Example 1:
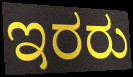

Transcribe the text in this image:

ಇರರು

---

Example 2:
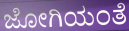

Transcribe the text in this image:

ಜೋಗಿಯಂತೆ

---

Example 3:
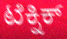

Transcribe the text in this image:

ಟೆಕ್ನಿಕ್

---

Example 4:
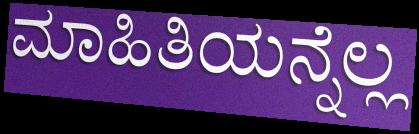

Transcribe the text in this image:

ಮಾಹಿತಿಯನ್ನೆಲ್ಲ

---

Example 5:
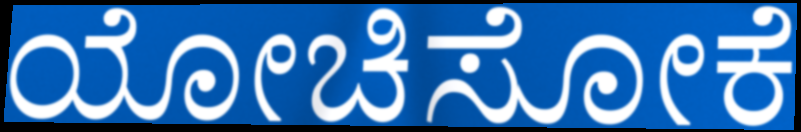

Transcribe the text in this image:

ಯೋಚಿಸೋಕೆ